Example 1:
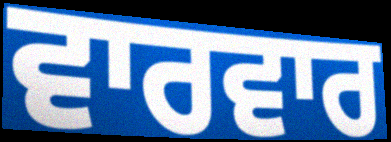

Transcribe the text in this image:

ਵਾਰਵਾਰ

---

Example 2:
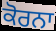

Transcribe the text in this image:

ਕੋਰਨਾ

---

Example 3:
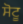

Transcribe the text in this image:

ਸੋਟੂ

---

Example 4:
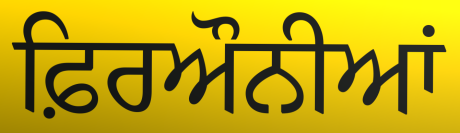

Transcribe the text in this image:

ਫ਼ਿਰਔਨੀਆਂ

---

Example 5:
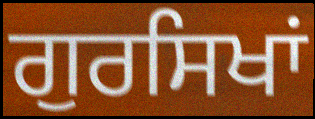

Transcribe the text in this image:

ਗੁਰਸਿਖਾਂ